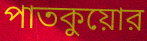
পাতকুয়োর